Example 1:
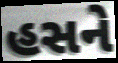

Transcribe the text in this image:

હસને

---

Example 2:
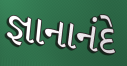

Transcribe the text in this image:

જ્ઞાનાનંદે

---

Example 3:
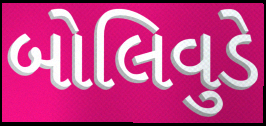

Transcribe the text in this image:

બોલિવુડે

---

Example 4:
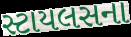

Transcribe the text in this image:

સ્ટાયલસના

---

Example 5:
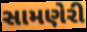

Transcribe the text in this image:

સામણેરી